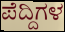
ಪೆದ್ದಿಗಳ